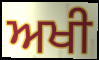
ਅਖੀ